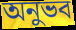
অনুভব